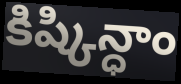
కిష్కిన్ధాం